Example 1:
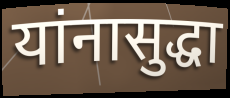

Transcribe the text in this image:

यांनासुद्धा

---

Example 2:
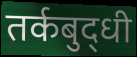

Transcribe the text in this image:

तर्कबुद्धी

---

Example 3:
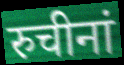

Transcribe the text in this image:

रुचीनां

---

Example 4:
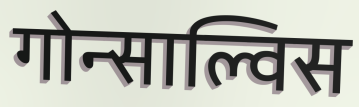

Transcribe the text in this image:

गोन्साल्विस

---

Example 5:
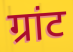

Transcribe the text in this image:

ग्रांट